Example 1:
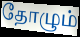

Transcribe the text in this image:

தோழும்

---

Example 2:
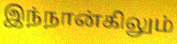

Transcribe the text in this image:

இந்நான்கிலும்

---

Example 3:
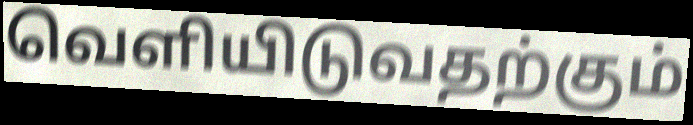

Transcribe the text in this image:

வெளியிடுவதற்கும்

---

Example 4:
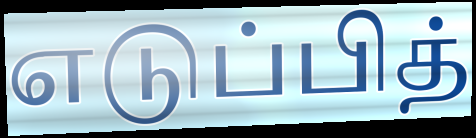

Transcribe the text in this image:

எடுப்பித்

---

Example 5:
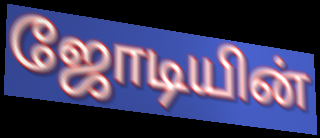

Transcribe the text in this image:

ஜோடியின்